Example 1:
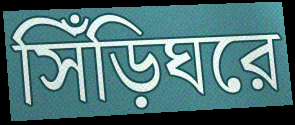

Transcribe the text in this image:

সিঁড়িঘরে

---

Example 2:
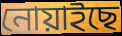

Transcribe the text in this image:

নোয়াইছে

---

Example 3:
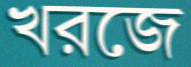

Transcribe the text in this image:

খরজে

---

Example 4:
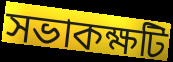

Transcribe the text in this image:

সভাকক্ষটি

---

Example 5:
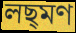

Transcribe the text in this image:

লছ্মণ